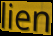
lien